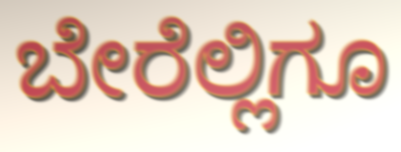
ಬೇರೆಲ್ಲಿಗೂ